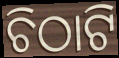
ଚିଠାଟି